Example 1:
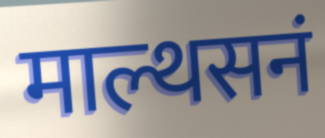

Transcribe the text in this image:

माल्थसनं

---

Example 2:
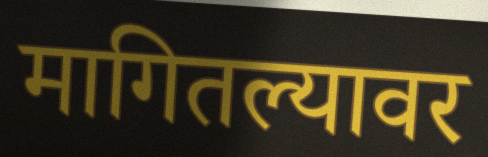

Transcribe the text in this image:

मागितल्यावर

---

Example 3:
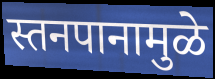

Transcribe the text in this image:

स्तनपानामुळे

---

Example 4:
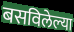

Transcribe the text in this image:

बसविलेल्या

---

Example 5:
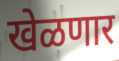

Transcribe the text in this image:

खेळणार